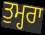
ਤੁਮ੍ਹਰਾ